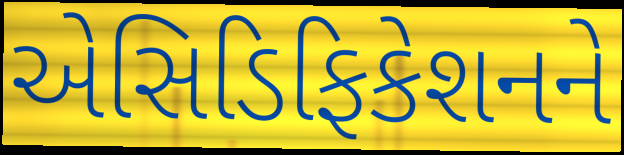
એસિડિફિકેશનને